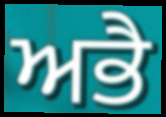
ਅਭੈ